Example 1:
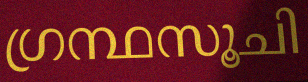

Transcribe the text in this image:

ഗ്രന്ഥസൂചി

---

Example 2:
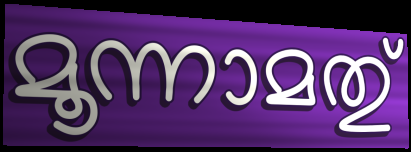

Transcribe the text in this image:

മൂന്നാമതു്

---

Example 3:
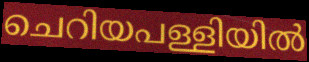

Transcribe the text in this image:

ചെറിയപള്ളിയിൽ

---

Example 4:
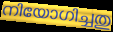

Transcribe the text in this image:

നിയോഗിച്ചതു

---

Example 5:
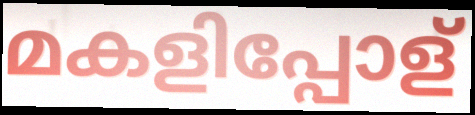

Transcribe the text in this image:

മകളിപ്പോള്